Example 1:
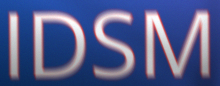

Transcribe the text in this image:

IDSM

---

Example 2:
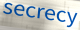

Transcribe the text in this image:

secrecy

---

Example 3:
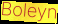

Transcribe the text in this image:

Boleyn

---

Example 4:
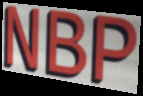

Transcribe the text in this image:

NBP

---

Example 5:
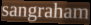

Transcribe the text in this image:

sangraham